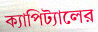
ক্যাপিট্যালের